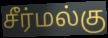
சீர்மல்கு